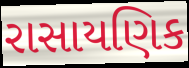
રાસાયણિક